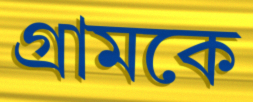
গ্রামকে